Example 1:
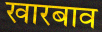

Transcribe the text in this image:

खारबाव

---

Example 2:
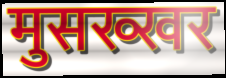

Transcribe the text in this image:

मुसख्खर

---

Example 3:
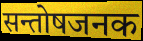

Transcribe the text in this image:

सन्तोषजनक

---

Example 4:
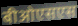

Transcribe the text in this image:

बीओएसएस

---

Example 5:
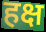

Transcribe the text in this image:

हक्ष